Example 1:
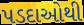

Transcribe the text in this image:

પડદાઓથી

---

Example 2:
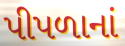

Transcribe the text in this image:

પીપળાનાં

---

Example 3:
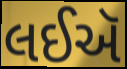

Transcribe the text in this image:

લઈઍ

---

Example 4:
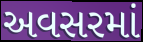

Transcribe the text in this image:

અવસરમાં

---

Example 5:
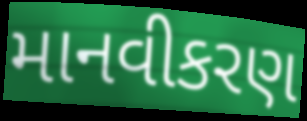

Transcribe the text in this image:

માનવીકરણ